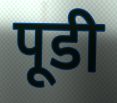
पूडी